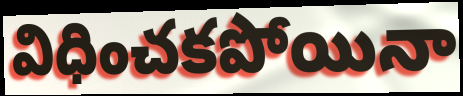
విధించకపోయినా